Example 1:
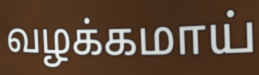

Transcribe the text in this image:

வழக்கமாய்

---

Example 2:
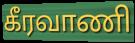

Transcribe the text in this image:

கீரவாணி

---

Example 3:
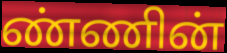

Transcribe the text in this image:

ண்ணின்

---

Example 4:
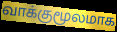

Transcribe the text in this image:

வாக்குமூலமாக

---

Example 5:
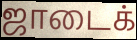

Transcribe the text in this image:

ஜாடைக்